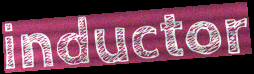
inductor